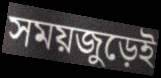
সময়জুড়েই